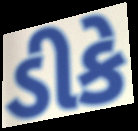
ડીકે